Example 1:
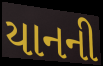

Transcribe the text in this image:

યાનની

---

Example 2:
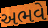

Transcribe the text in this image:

અભવે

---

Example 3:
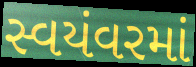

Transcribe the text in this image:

સ્વયંવરમાં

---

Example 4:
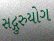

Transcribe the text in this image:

સદ્ગુરુયોગ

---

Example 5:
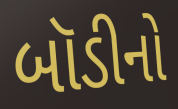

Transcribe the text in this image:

બૉડીનો